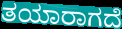
ತಯಾರಾಗದೆ